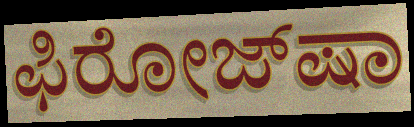
ಫಿರೋಜ್‌ಷಾ